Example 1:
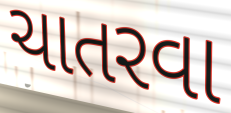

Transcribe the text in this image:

ચાતરવા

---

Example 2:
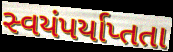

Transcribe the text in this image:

સ્વયંપર્યાપ્તતા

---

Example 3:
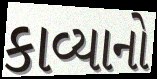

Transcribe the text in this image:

કાવ્યાનો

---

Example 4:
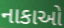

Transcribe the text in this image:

નાકાઓ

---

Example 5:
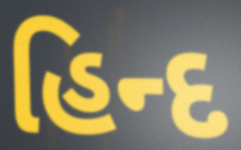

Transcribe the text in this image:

હિન્દ